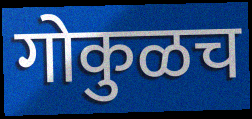
गोकुळच